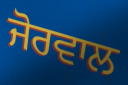
ਜੋਰਵਾਲ